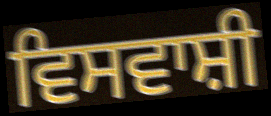
ਵਿਸਵਾਸ਼ੀ